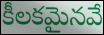
కీలకమైనవే